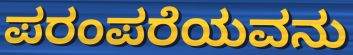
ಪರಂಪರೆಯವನು